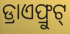
ଡ୍ରାଏଫ୍ରୁଟ୍